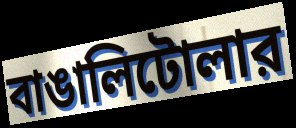
বাঙালিটোলার